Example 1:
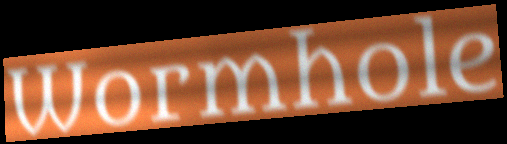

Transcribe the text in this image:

Wormhole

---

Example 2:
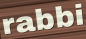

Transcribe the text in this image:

rabbi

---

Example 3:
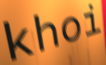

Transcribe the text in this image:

khoi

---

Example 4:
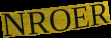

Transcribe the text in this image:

NROER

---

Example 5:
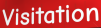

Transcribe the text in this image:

Visitation